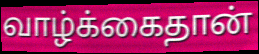
வாழ்க்கைதான்